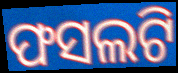
ଫସଲଟି